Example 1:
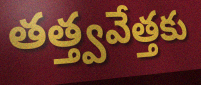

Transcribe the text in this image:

తత్త్వవేత్తకు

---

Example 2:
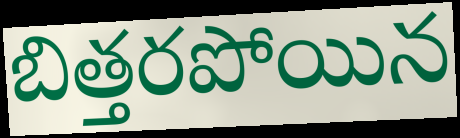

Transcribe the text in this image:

బిత్తరపోయిన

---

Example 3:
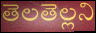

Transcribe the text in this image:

తెలతెల్లని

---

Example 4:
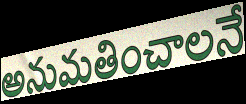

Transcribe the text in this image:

అనుమతించాలనే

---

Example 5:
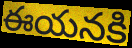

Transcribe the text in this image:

ఈయనకి